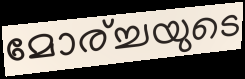
മോര്ച്ചയുടെ